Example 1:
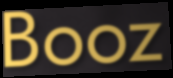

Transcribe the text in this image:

Booz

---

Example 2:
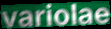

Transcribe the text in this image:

variolae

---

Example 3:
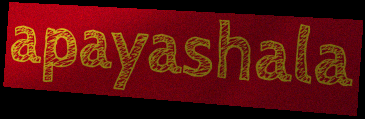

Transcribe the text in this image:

apayashala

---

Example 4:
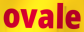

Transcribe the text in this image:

ovale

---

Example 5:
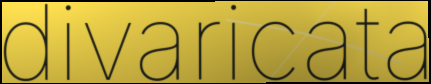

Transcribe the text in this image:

divaricata